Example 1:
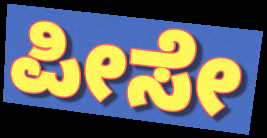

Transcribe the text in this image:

ಪೀಸೇ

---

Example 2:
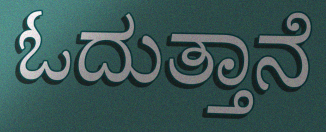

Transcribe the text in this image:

ಓದುತ್ತಾನೆ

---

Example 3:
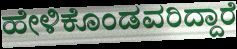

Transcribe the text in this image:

ಹೇಳಿಕೊಂಡವರಿದ್ದಾರೆ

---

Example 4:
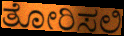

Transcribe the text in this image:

ತೋರಿಸಲಿ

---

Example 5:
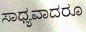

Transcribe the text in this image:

ಸಾಧ್ಯವಾದರೂ